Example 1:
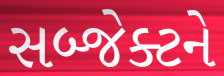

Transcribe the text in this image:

સબ્જેક્ટને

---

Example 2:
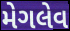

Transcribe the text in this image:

મેગલેવ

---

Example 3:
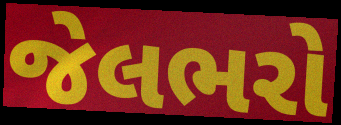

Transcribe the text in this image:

જેલભરો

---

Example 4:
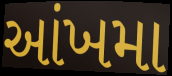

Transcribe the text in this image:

આંખમા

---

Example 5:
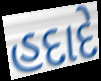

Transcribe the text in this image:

હદાદે